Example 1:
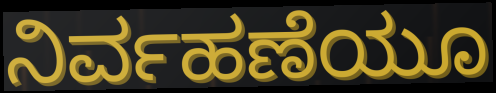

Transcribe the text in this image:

ನಿರ್ವಹಣೆಯೂ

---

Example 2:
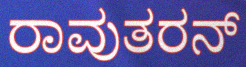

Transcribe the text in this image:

ರಾವುತರನ್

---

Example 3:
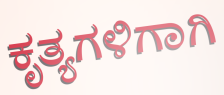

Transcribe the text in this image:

ಕೃತ್ಯಗಳಿಗಾಗಿ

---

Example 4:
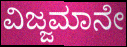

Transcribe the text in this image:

ವಿಜ್ಜಮಾನೇ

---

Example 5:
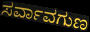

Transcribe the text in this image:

ಸರ್ವಾವಗುಣ